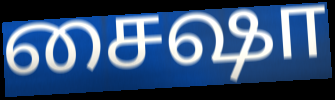
சைஷா